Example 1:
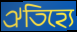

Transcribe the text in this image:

ঐতিহ্যে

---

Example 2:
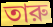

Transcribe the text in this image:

তারু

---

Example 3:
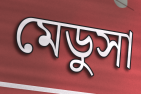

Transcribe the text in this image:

মেডুসা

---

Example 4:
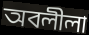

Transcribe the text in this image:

অবলীলা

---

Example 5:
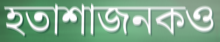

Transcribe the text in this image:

হতাশাজনকও